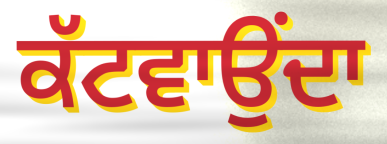
ਕੱਟਵਾਉਂਦਾ